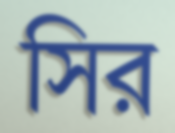
সির